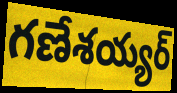
గణేశయ్యర్